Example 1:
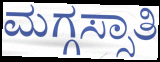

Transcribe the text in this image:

ಮಗ್ಗಸ್ಸಾತಿ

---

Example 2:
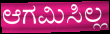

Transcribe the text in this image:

ಆಗಮಿಸಿಲ್ಲ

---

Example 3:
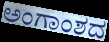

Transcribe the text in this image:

ಅಂಗಾಂಶದ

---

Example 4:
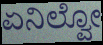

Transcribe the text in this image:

ಏನಿಲ್ವೋ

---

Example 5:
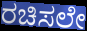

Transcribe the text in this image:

ರಚಿಸಲೇ